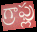
గ్రాఫ్లు